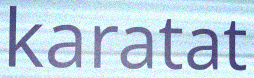
karatat